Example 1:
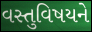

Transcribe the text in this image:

વસ્તુવિષયને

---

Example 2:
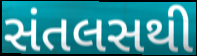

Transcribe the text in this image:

સંતલસથી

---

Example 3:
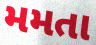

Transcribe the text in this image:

મમતા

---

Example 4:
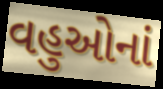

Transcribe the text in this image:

વહુઓનાં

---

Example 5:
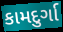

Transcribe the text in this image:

કામદુર્ગા